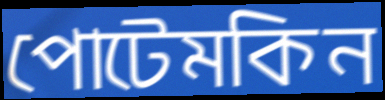
পোটেমকিন